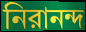
নিরানন্দ